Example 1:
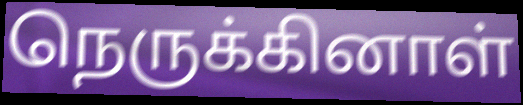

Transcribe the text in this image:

நெருக்கினாள்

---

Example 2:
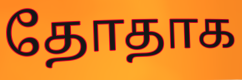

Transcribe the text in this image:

தோதாக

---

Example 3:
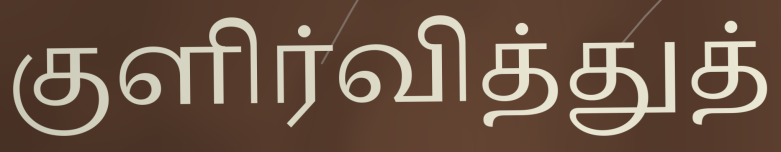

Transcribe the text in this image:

குளிர்வித்துத்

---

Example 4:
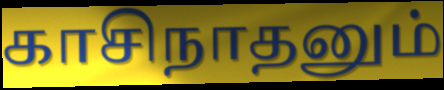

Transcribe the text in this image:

காசிநாதனும்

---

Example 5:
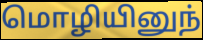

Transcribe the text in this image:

மொழியினுந்